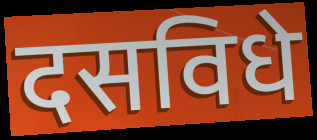
दसविधे